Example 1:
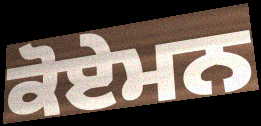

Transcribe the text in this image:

ਕੋਏਮਨ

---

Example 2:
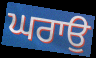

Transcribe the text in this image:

ਘਰਾਉ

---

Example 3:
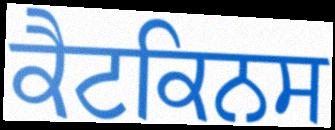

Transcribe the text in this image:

ਕੈਟਕਿਨਸ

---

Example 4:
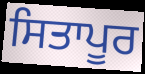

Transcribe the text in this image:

ਸਿਤਾਪੂਰ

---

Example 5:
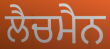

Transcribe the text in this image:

ਲੈਚਮੈਨ